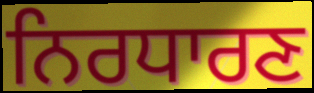
ਨਿਰਧਾਰਣ